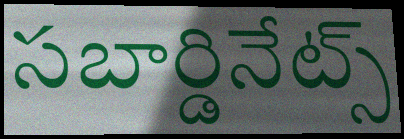
సబార్డినేట్స్